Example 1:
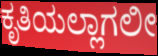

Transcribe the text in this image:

ಕೃತಿಯಲ್ಲಾಗಲೀ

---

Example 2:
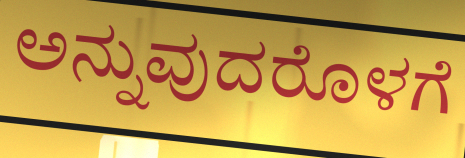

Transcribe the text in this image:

ಅನ್ನುವುದರೊಳಗೆ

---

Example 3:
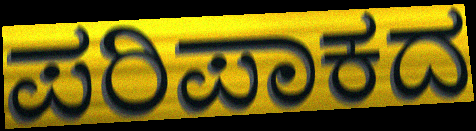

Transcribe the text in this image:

ಪರಿಪಾಕದ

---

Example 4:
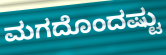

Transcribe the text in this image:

ಮಗದೊಂದಷ್ಟು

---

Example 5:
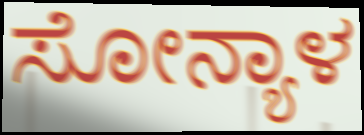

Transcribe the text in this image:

ಸೋನ್ಯಾಳ